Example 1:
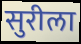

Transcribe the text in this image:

सुरीला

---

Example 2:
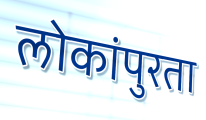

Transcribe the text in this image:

लोकांपुरता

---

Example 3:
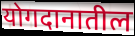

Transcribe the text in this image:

योगदानातील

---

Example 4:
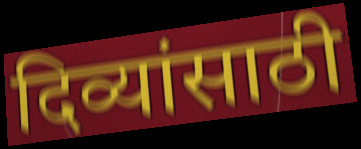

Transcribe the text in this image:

दिव्यांसाठी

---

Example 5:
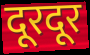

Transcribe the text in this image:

दूरदूर